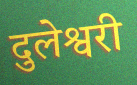
दुलेश्वरी